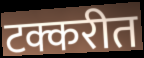
टक्करीत